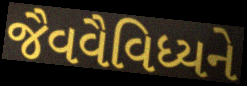
જૈવવૈવિધ્યને